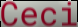
Ceci